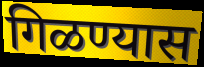
गिळण्यास